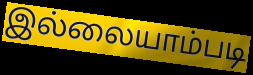
இல்லையாம்படி